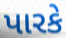
પારકે